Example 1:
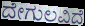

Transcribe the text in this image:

ದೇಗುಲವಿದೆ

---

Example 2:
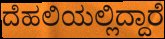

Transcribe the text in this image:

ದೆಹಲಿಯಲ್ಲಿದ್ದಾರೆ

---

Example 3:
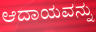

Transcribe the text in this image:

ಆದಾಯವನ್ನು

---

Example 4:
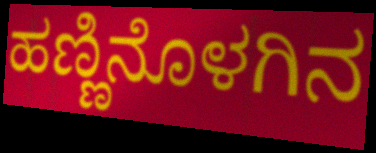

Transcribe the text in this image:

ಹಣ್ಣಿನೊಳಗಿನ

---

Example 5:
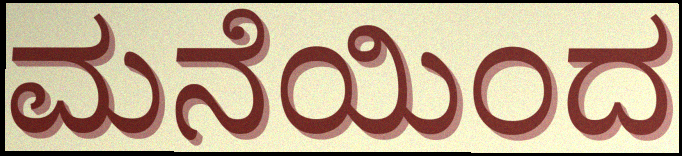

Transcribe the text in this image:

ಮನೆಯಿಂದ